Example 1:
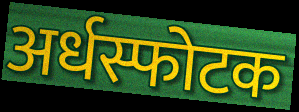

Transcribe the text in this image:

अर्धस्फोटक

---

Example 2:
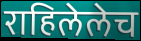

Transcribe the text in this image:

राहिलेलेच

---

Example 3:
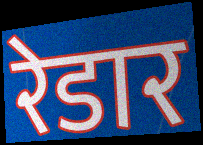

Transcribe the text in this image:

रेडार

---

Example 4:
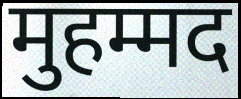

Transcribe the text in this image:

मुहम्मद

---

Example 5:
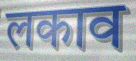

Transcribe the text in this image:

लकाव